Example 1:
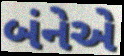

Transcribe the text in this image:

બંનેએ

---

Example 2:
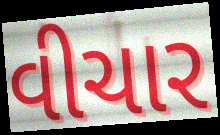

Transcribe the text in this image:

વીચાર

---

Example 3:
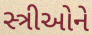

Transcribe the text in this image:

સ્ત્રીઓને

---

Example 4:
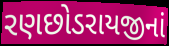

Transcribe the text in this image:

રણછોડરાયજીનાં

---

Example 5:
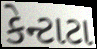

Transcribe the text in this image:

કેન્ટાટા